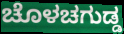
ಚೊಳಚಗುಡ್ಡ